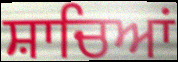
ਸ਼ਾਚਿਆਂ